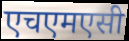
एचएमएसी